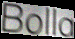
Bolla